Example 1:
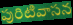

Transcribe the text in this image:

పురిటివాసన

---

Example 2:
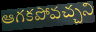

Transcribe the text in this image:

ఆగకపోవచ్చని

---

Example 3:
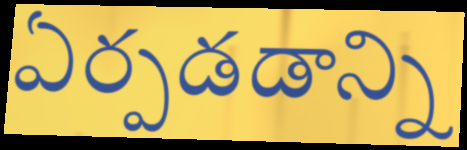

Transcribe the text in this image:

ఏర్పడడాన్ని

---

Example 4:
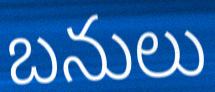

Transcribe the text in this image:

బనులు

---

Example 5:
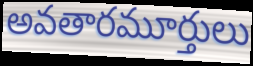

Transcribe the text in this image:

అవతారమూర్తులు